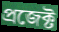
প্রজেক্ট